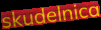
skudelnica